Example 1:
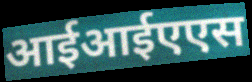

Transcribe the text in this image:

आईआईएएस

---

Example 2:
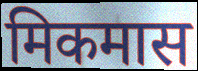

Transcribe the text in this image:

मिकमास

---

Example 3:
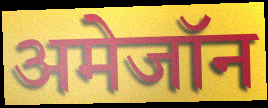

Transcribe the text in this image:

अमेजॉन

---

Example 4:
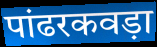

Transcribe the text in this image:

पांढरकवड़ा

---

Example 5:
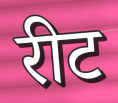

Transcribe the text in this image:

रीट